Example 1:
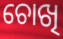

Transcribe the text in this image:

ଚୋଖି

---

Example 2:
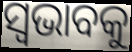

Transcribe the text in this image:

ସ୍ୱଭାବକୁ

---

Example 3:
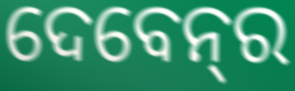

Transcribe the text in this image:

ଦେବେନ୍‌ର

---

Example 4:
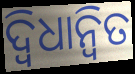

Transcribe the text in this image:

ଦ୍ଵିଧାନ୍ୱିତ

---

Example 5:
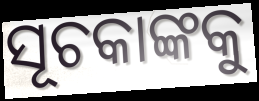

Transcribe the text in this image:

ସୂଚକାଙ୍କକୁ